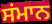
ਸਂਮਾਨ